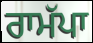
ਰਾਮੱਪਾ